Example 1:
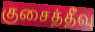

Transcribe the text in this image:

குசைத்தீவு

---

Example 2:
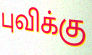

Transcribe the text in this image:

புவிக்கு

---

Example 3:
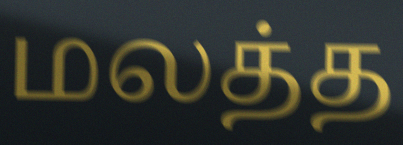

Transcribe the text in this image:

மலத்த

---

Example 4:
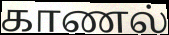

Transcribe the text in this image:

காணல்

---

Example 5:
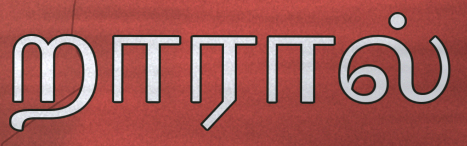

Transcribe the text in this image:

றாரால்